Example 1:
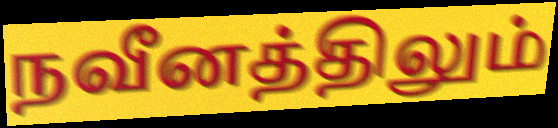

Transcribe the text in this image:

நவீனத்திலும்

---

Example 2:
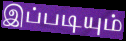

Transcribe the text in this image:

இப்படியும்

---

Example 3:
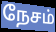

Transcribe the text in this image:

நேசம்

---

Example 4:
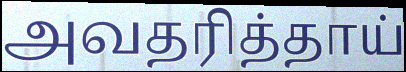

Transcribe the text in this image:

அவதரித்தாய்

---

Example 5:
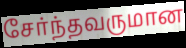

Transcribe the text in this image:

சேர்ந்தவருமான